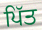
ਪਿੱਤ